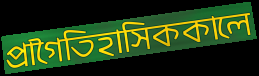
প্রাগৈতিহাসিককালে